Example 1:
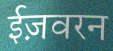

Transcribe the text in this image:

ईज़वरन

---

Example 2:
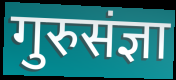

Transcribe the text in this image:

गुरुसंज्ञा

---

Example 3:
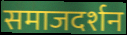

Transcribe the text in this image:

समाजदर्शन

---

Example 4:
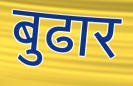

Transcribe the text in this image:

बुढार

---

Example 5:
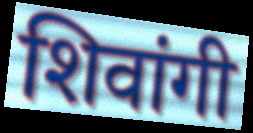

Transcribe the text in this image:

शिवांगी